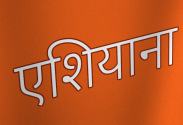
एशियाना